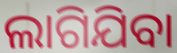
ଲାଗିଯିବା